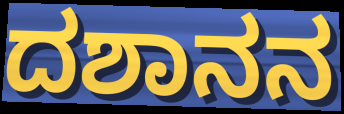
ದಶಾನನ